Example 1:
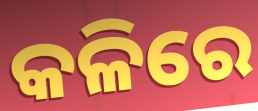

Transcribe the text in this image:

କଳିରେ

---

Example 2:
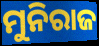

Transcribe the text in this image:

ମୁନିରାଜ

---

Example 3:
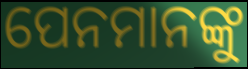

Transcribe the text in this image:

ପେନମାନଙ୍କୁ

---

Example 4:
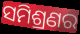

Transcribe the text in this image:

ସମିଶ୍ରଣର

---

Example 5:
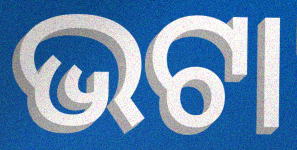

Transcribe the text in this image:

ଭଟା